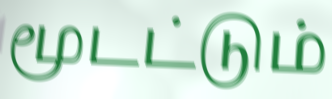
மூடட்டும்